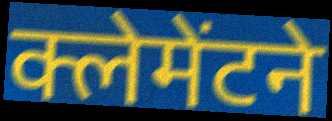
क्लेमेंटने